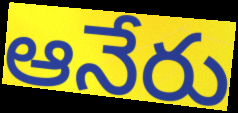
ఆనేరు